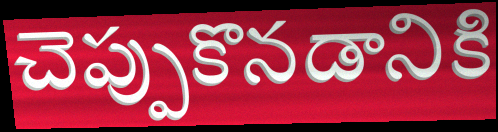
చెప్పుకొనడానికి